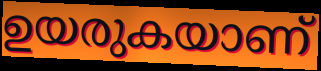
ഉയരുകയാണ്